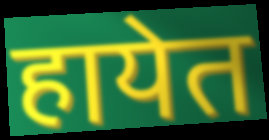
हायेत